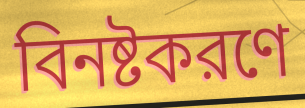
বিনষ্টকরণে